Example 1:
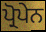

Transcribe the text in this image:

ਪ੍ਰੋਪੇਨ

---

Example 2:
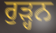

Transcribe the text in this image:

ਰੁੜ੍ਹਨ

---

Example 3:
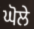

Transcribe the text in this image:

ਘੋਲੇ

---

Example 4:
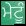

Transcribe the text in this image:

ਮੇਟੂੰ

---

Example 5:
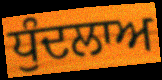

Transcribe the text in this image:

ਧੁੰਦਲਾਅ